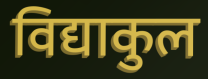
विद्याकुल